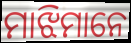
ମାଝିମାନେ